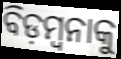
ବିଡ଼ମ୍ୱନାକୁ